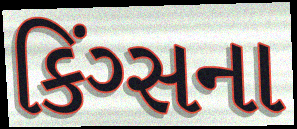
કિંગ્સના